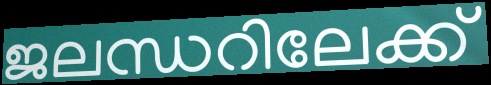
ജലന്ധറിലേക്ക്